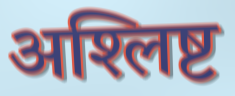
अश्लिष्ट